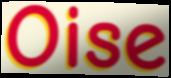
Oise